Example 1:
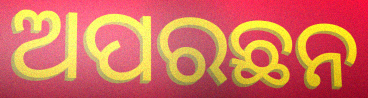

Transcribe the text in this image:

ଅପରଛନ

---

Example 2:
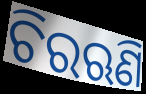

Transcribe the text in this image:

ଚିରଋଣି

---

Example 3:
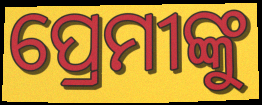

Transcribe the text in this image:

ପ୍ରେମୀଙ୍କୁ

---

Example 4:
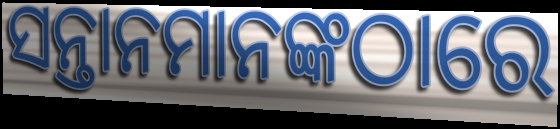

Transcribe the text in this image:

ସନ୍ତାନମାନଙ୍କଠାରେ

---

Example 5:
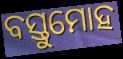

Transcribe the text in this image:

ବସ୍ତୁମୋହ